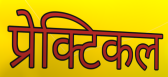
प्रेक्टिकल